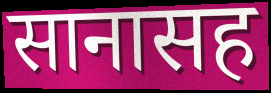
सानासह